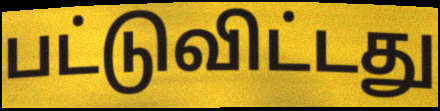
பட்டுவிட்டது